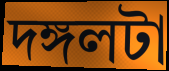
দঙ্গলটা